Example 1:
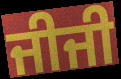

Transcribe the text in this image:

ਜੀਜੀ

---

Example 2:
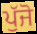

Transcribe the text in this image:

ਪੁੱਜੋ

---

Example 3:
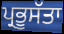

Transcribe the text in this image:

ਪ੍ਰਭੂਸੱਤਾ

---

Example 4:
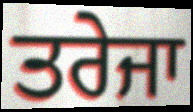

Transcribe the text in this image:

ਤਰੇਜਾ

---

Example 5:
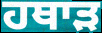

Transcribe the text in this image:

ਹਥਾੜ